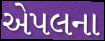
એપલના